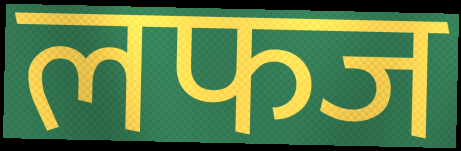
लफज